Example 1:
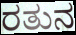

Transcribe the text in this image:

ರತುನ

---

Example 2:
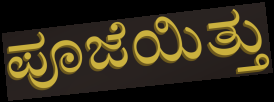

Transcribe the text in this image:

ಪೂಜೆಯಿತ್ತು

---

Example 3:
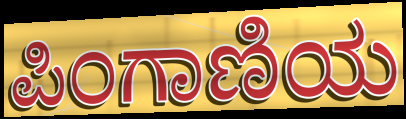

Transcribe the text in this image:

ಪಿಂಗಾಣಿಯ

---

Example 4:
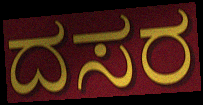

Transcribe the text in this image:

ದಸರ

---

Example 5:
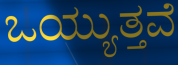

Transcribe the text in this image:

ಒಯ್ಯುತ್ತವೆ